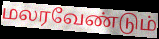
மலரவேண்டும்